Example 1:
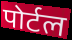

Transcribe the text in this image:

पोर्टल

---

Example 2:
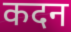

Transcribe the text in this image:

कदन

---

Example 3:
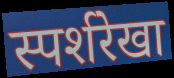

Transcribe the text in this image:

स्पर्शरेखा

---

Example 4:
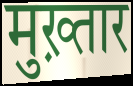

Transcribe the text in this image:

मुख़्तार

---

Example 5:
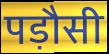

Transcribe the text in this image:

पड़ौसी